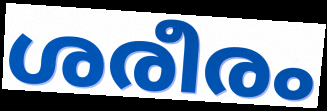
ശരീരം